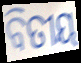
ବିତୀୟ